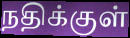
நதிக்குள்